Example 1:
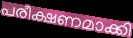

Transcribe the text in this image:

പരീക്ഷണമാക്കി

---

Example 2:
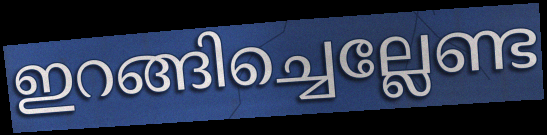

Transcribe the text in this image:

ഇറങ്ങിച്ചെല്ലേണ്ട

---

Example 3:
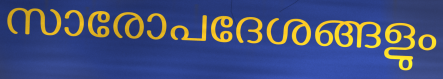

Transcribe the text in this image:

സാരോപദേശങ്ങളും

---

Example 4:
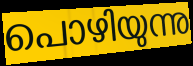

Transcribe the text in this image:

പൊഴിയുന്നു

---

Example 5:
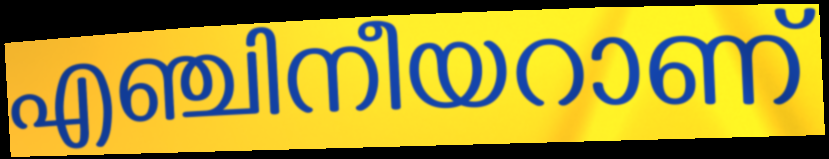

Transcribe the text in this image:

എഞ്ചിനീയറാണ്